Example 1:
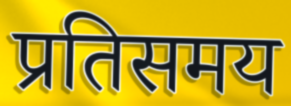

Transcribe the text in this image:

प्रतिसमय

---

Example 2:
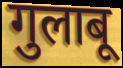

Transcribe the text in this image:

गुलाबू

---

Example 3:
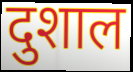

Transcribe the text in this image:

दुशाल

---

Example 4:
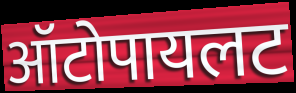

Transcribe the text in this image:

ऑटोपायलट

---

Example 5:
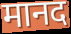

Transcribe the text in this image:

मानद